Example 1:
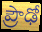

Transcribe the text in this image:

ప్రౌఢో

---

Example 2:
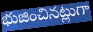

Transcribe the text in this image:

భుజించినట్లుగా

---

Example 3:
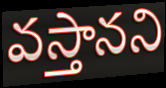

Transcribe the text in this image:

వస్తానని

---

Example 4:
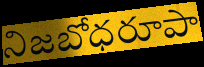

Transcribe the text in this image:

నిజబోధరూపా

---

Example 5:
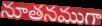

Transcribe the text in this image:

నూతనముగా